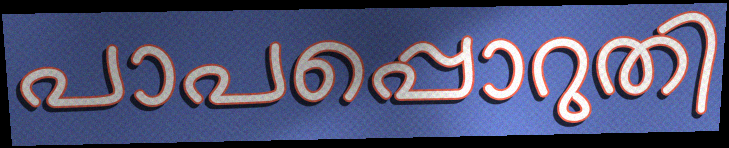
പാപപ്പൊറുതി